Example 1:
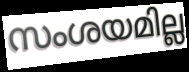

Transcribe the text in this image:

സംശയമില്ല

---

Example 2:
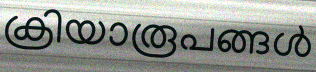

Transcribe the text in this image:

ക്രിയാരൂപങ്ങൾ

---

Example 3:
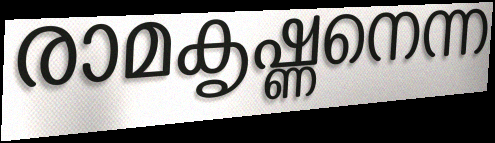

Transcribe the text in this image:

രാമകൃഷ്ണനെന്ന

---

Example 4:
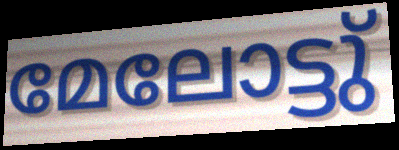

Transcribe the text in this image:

മേലോട്ടു്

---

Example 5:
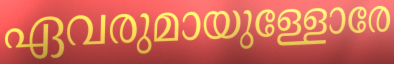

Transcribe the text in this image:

ഏവരുമായുള്ളോരേ